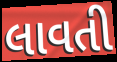
લાવતી